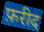
फ़रीद